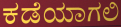
ಕಡೆಯಾಗಲಿ